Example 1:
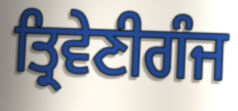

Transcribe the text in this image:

ਤ੍ਰਿਵੇਣੀਗੰਜ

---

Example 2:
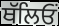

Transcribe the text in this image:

ਥੱਲਿਓਂ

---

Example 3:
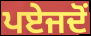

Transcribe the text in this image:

ਪਏਜਦੋਂ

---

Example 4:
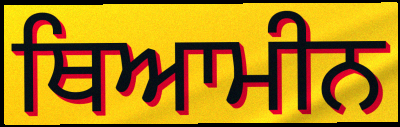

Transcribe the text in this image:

ਥਿਆਮੀਨ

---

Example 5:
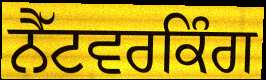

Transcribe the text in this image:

ਨੈੱਟਵਰਕਿੰਗ